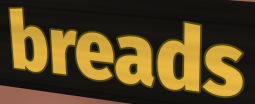
breads